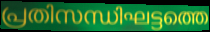
പ്രതിസന്ധിഘട്ടത്തെ